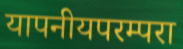
यापनीयपरम्परा